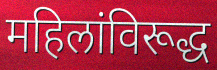
महिलांविरूद्ध